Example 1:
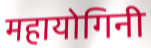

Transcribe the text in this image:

महायोगिनी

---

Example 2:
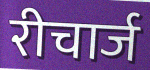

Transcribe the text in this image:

रीचार्ज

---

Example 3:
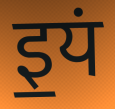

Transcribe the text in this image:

इ॒यं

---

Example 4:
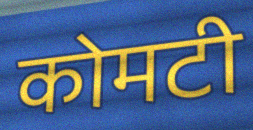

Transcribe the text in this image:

कोमटी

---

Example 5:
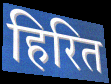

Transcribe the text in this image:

हिरित